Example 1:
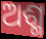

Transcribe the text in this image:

ଅଶ୍ମ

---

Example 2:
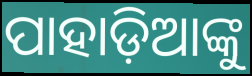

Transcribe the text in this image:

ପାହାଡ଼ିଆଙ୍କୁ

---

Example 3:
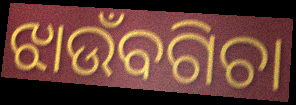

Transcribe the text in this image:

ଝାଉଁବଗିଚା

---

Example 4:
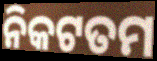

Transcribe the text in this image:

ନିକଟତମ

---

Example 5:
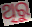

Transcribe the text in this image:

ଥିରୁ